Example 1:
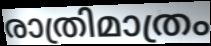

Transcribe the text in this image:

രാത്രിമാത്രം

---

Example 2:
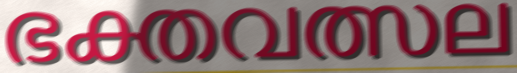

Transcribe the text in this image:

ഭക്തവത്സല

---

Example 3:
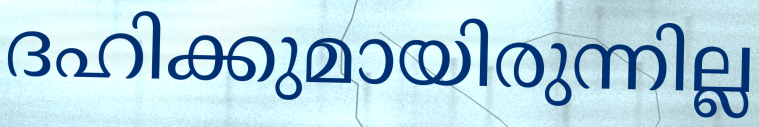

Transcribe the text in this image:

ദഹിക്കുമായിരുന്നില്ല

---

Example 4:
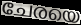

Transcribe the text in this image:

ചേരയെ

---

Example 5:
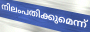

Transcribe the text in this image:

നിലംപതിക്കുമെന്ന്